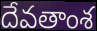
దేవతాంశ